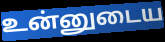
உன்னுடைய